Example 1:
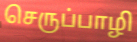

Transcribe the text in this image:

செருப்பாழி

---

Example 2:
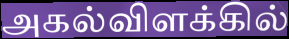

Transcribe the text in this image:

அகல்விளக்கில்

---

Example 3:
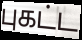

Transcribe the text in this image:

புகட்ட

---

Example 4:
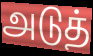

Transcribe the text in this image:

அடுத்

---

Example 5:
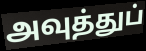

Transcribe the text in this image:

அவுத்துப்